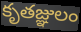
కృతజ్ఞులం